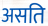
असति